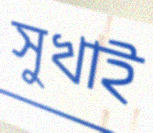
সুখাই